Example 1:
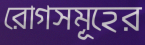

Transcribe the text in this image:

রোগসমূহের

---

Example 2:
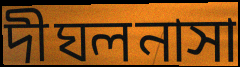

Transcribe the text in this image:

দীঘলনাসা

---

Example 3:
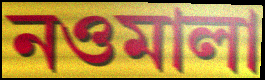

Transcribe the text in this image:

নওমালা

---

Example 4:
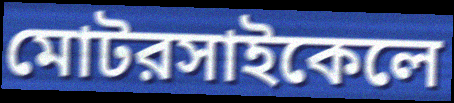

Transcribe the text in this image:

মোটরসাইকেলে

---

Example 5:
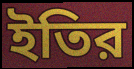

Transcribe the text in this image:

ইতির